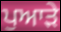
ਪੁਆੜੇ